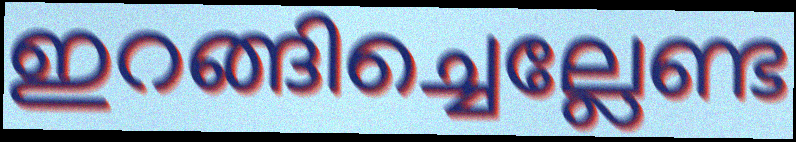
ഇറങ്ങിച്ചെല്ലേണ്ട